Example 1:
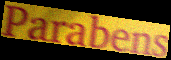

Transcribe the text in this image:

Parabens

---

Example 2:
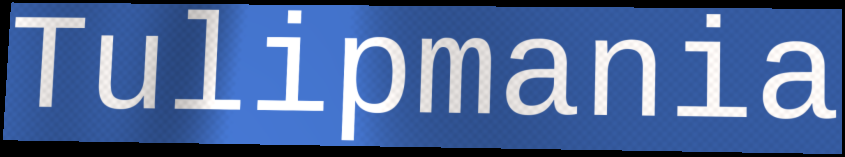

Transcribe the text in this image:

Tulipmania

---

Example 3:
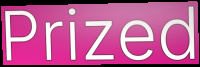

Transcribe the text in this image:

Prized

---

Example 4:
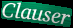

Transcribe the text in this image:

Clauser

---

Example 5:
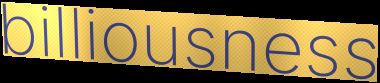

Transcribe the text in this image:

billiousness